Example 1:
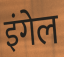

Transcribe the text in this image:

इंगेल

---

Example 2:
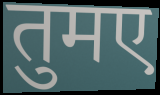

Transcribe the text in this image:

तुमए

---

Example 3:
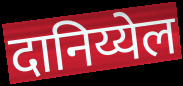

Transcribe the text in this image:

दानिय्येल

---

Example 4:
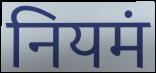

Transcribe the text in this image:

नियमं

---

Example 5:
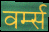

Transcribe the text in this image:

वर्म्स